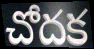
చోదక